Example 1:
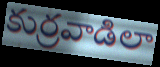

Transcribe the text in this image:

కుర్రవాడిలా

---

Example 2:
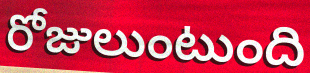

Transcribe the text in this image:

రోజులుంటుంది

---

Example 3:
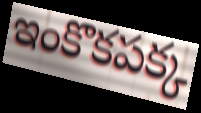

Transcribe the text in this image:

ఇంకొకపక్క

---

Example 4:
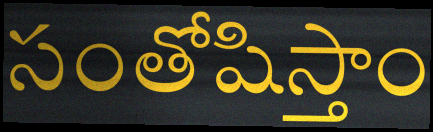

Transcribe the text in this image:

సంతోషిస్తాం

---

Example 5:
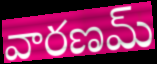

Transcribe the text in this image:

వారణమ్